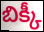
బిక్కీ